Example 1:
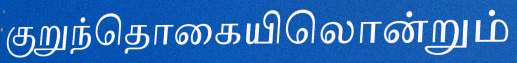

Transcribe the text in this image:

குறுந்தொகையிலொன்றும்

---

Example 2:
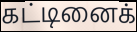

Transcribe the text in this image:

கட்டினைக்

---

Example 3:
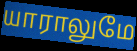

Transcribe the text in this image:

யாராலுமே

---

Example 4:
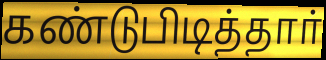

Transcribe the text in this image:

கண்டுபிடித்தார்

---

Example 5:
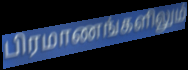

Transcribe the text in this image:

பிரமாணங்களிலும்